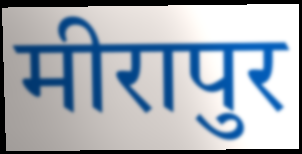
मीरापुर